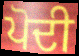
ਪੋਦੀ